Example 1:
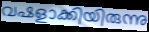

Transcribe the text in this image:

വഷളാക്കിയിരുന്നു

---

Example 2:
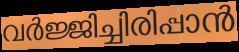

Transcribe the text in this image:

വർജ്ജിച്ചിരിപ്പാൻ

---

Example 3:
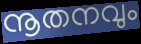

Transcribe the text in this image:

നൂതനവും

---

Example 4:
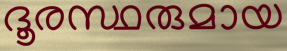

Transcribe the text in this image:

ദൂരസ്ഥരുമായ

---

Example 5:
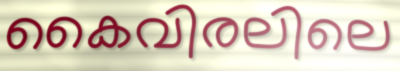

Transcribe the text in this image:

കൈവിരലിലെ